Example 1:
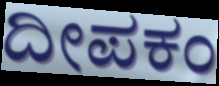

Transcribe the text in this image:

ದೀಪಕಂ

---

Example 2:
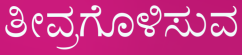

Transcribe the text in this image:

ತೀವ್ರಗೊಳಿಸುವ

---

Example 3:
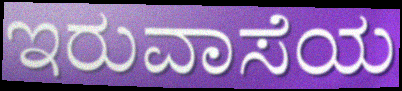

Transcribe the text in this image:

ಇರುವಾಸೆಯ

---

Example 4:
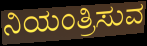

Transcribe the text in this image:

ನಿಯಂತ್ರಿಸುವ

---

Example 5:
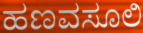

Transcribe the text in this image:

ಹಣವಸೂಲಿ